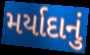
મર્યાદાનું